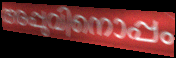
അപ്പുവിനൊപ്പം